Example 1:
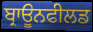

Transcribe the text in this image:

ਬ੍ਰਾਊਨਫੀਲਡ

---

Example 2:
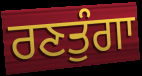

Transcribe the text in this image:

ਰਣਤੁੰਗਾ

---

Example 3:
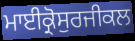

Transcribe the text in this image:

ਮਾਈਕ੍ਰੋਸੁਰਜੀਕਲ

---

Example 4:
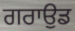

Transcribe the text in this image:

ਗਰਾਉਡ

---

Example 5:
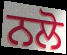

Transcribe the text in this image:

ਨਲੋ